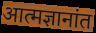
आत्मज्ञानांत